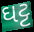
ઘટ્ટ